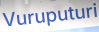
Vuruputuri